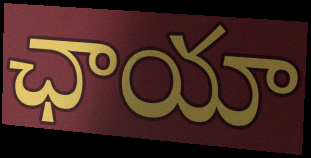
ఛాయా